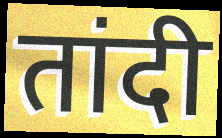
तांदी